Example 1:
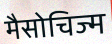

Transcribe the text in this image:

मैसोचिज्म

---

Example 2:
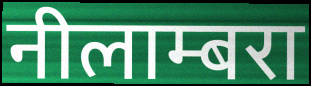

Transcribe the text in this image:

नीलाम्बरा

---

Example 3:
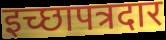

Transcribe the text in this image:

इच्छापत्रदार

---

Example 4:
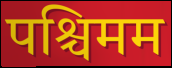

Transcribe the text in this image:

पश्चिमम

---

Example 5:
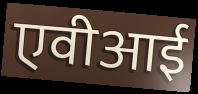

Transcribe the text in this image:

एवीआई